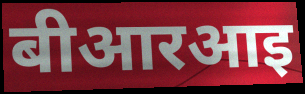
बीआरआइ